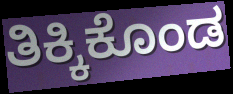
ತಿಕ್ಕಿಕೊಂಡ